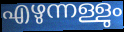
എഴുന്നള്ളും